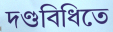
দণ্ডবিধিতে